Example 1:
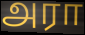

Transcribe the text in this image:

அரா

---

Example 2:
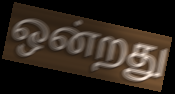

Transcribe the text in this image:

ஒன்றது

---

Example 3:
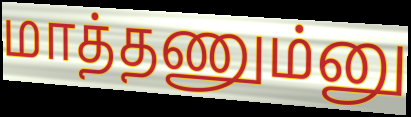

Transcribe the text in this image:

மாத்தணும்னு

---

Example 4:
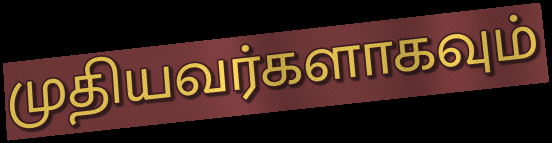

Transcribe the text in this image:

முதியவர்களாகவும்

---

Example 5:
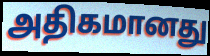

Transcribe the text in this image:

அதிகமானது